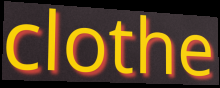
clothe